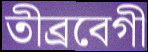
তীব্ৰবেগী